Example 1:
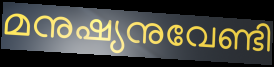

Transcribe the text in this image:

മനുഷ്യനുവേണ്ടി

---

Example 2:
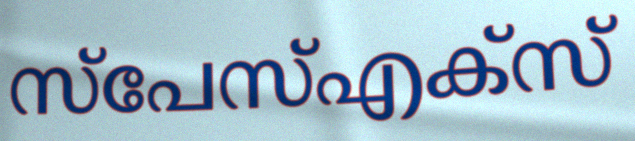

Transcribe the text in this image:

സ്പേസ്എക്സ്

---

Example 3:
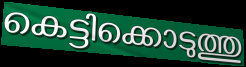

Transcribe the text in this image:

കെട്ടിക്കൊടുത്തു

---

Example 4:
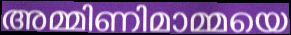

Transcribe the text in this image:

അമ്മിണിമാമ്മയെ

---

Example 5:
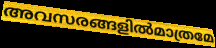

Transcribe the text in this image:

അവസരങ്ങളിൽമാത്രമേ